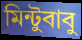
মিন্টুবাবু